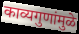
काव्यगुणांमुळे